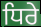
ਧਿਰੇ